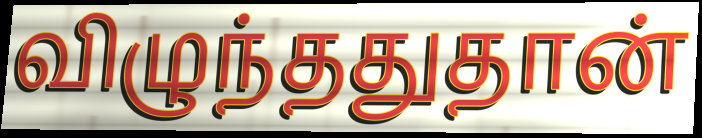
விழுந்ததுதான்